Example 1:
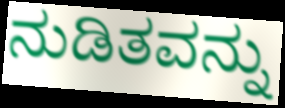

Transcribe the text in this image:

ನುಡಿತವನ್ನು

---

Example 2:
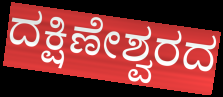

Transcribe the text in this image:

ದಕ್ಷಿಣೇಶ್ವರದ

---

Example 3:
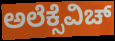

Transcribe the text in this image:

ಅಲೆಕ್ಸೆವಿಚ್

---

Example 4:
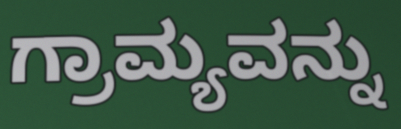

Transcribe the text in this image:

ಗ್ರಾಮ್ಯವನ್ನು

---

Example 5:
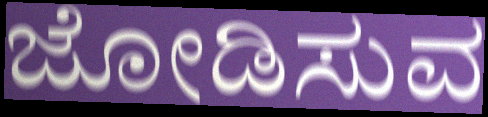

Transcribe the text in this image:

ಜೋಡಿಸುವ